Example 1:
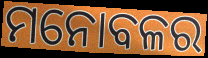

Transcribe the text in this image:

ମନୋବଳର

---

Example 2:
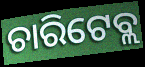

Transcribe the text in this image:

ଚାରିଟେବ୍ଲ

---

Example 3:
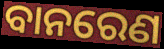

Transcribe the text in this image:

ବାନରେଣ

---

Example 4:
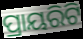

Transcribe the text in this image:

ପ୍ରାୟରିଟି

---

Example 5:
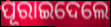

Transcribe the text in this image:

ପୂରାଇଦେଲେ